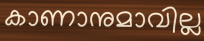
കാണാനുമാവില്ല